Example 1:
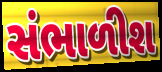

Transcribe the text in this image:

સંભાળીશ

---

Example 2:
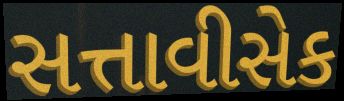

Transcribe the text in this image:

સત્તાવીસેક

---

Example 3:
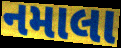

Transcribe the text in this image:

નમાલા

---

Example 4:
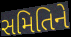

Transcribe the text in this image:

સમિતિને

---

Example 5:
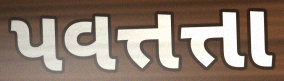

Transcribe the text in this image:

પવત્તત્તા